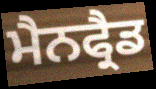
ਮੈਨਫ੍ਰੈਡ